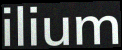
ilium